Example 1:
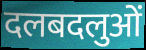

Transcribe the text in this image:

दलबदलुओं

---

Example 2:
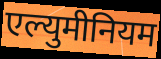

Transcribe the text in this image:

एल्युमीनियम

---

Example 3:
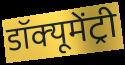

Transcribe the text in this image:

डॉक्‍यूमेंट्री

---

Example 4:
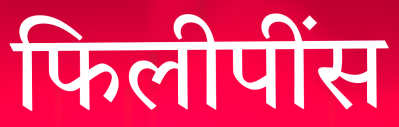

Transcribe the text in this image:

फिलीपींस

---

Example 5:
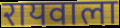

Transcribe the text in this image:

रायवाला